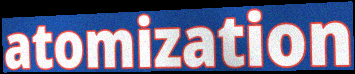
atomization